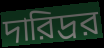
দারিদ্রর